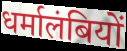
धर्मालंबियों